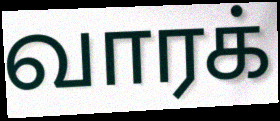
வாரக்